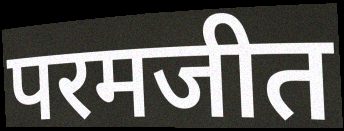
परमजीत